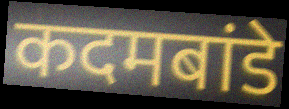
कदमबांडे